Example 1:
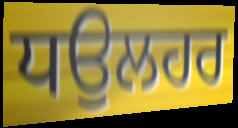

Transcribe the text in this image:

ਧਉਲਹਰ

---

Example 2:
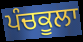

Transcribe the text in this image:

ਪੰਚਕੂਲਾ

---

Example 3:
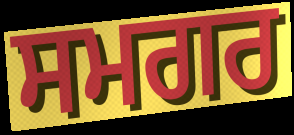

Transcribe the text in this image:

ਸਮਗਰ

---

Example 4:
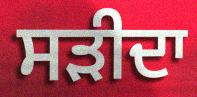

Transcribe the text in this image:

ਸੜੀਦਾ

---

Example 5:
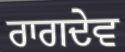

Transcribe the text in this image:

ਰਾਗਦੇਵ